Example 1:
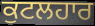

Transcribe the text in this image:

ਕੁਟਲਹਾਰ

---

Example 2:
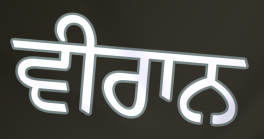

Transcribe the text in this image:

ਵੀਰਾਨ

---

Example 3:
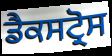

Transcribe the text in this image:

ਡੈਕਸਟ੍ਰੋਸ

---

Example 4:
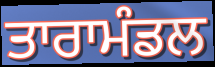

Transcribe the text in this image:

ਤਾਰਾਮੰਡਲ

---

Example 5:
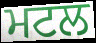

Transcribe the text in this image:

ਮਟਲ